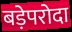
बड़ेपरोदा